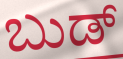
ಬುಡ್